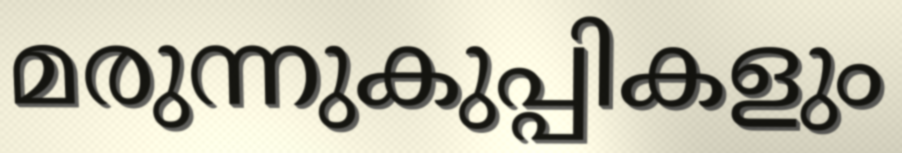
മരുന്നുകുപ്പികളും